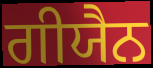
ਗੀਯੈਨ